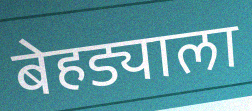
बेहड्याला